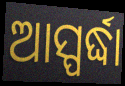
ଆସ୍ପର୍ଦ୍ଧା